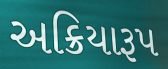
અક્રિયારૂપ